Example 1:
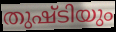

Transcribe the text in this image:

തുഷ്ടിയും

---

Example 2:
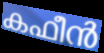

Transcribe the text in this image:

കഫീൻ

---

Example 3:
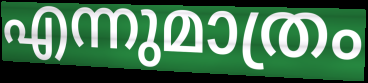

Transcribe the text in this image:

എന്നുമാത്രം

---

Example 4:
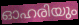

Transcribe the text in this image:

ഓഹരിയും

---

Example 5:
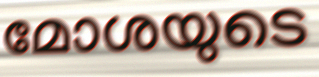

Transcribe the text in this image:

മോശയുടെ